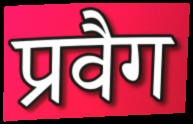
प्रवैग